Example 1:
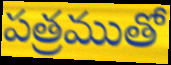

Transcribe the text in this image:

పత్రముతో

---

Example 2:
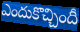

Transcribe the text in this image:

ఎందుకొచ్చిందీ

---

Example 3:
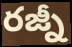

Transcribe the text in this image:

రజ్నీ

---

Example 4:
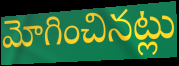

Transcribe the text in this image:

మోగించినట్లు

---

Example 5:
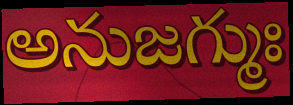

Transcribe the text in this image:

అనుజగ్ముః